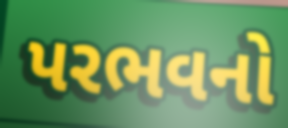
પરભવનો